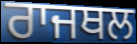
ਰਾਜਥਲ